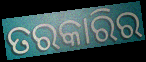
ତରକାରିର